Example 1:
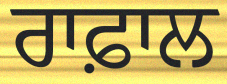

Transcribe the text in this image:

ਰਾਫ਼ਾਲ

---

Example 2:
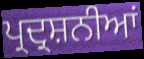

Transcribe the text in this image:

ਪ੍ਰਦ੍ਰਸ਼ਨੀਆਂ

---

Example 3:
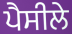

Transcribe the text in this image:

ਪੈਸੀਲੇ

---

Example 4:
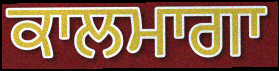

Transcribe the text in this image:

ਕਾਲਮਾਗਾ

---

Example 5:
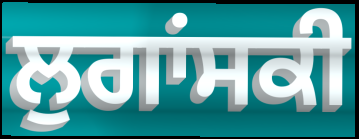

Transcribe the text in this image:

ਲੁਗਾਂਸਕੀ